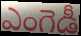
ఎంగెడీ